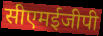
सीएमईजीपी